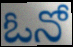
ఓనో